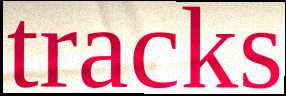
tracks